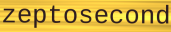
zeptosecond